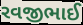
રવજીભાઈ